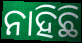
ନାହିଛି